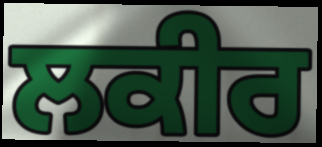
ਲਕੀਰ